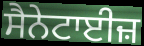
ਸੈਨੇਟਾਈਜ਼